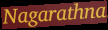
Nagarathna